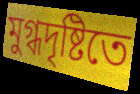
মুগ্ধদৃষ্টিতে